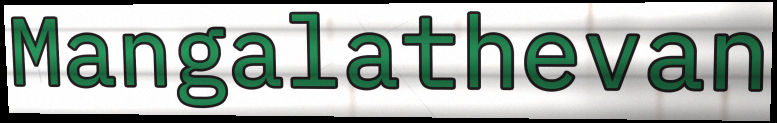
Mangalathevan